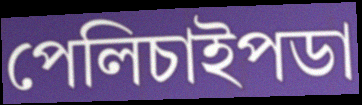
পেলিচাইপডা